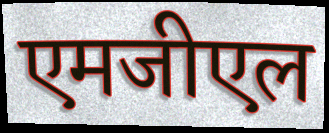
एमजीएल